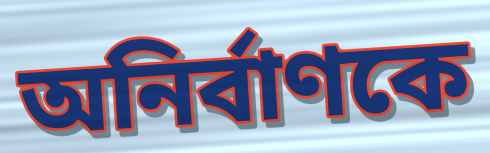
অনির্বাণকে